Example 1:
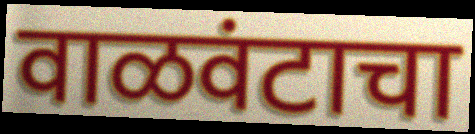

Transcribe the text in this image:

वाळवंटाचा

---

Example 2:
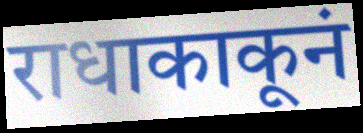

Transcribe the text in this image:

राधाकाकूनं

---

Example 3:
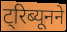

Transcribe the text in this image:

ट्रिब्यूनने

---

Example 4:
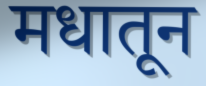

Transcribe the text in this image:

मधातून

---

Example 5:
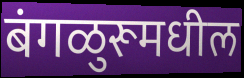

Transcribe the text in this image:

बंगळुरूमधील